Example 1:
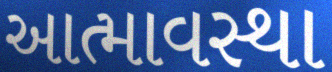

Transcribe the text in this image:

આત્માવસ્થા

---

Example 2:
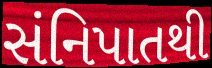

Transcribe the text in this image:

સંનિપાતથી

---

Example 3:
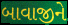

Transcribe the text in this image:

બાવાજીને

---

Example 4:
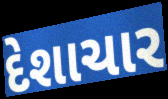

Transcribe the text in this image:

દેશાચાર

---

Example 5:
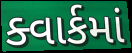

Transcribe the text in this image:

ક્વાર્કમાં